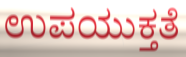
ಉಪಯುಕ್ತತೆ